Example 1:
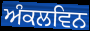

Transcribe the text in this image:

ਅੰਕਲਵਿਨ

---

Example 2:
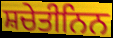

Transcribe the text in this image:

ਸ਼ਚੇਤੀਨਿਨ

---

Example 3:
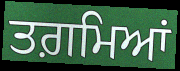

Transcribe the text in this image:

ਤਗ਼ਮਿਆਂ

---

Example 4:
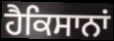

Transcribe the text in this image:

ਹੈਕਿਸਾਨਾਂ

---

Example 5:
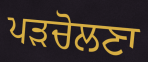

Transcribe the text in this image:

ਪੜਚੋਲਣਾ